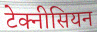
टेक्नीसियन